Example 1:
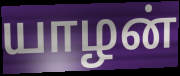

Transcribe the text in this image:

யாழன்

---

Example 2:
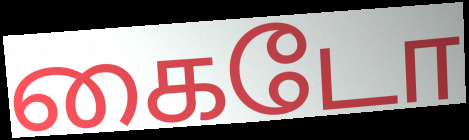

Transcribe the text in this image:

கைடோ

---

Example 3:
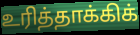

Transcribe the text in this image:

உரித்தாக்கிக்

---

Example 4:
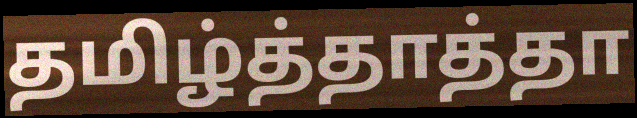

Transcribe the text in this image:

தமிழ்த்தாத்தா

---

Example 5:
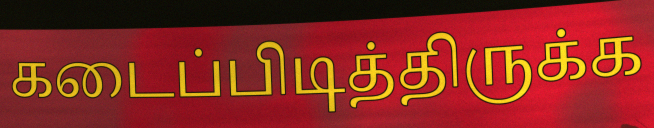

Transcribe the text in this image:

கடைப்பிடித்திருக்க